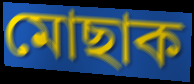
মোছাক